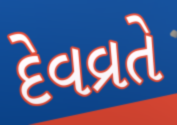
દેવવ્રતે